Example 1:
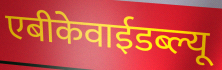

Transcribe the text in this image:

एबीकेवाईडब्ल्यू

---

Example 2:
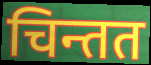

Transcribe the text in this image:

चिन्तत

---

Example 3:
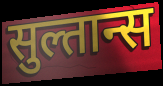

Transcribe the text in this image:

सुल्तान्स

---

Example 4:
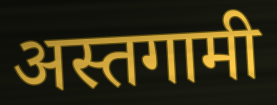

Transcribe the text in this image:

अस्तगामी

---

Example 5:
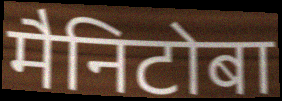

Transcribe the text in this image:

मैनिटोबा